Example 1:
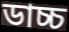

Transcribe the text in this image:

ডাচ্চ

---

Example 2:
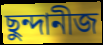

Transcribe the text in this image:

ছুন্দানীজ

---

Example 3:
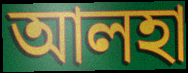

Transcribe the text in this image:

আলহা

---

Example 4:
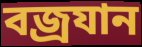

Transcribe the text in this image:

বজ্ৰযান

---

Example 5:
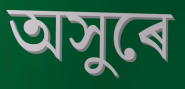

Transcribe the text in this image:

অসুৰে